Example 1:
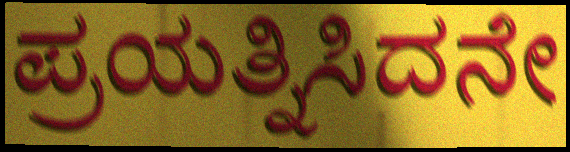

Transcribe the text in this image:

ಪ್ರಯತ್ನಿಸಿದನೇ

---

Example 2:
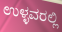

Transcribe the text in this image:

ಉಳ್ಳವರಲ್ಲಿ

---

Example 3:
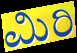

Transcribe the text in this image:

ಮಿರಿ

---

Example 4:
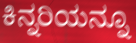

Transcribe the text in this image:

ಕಿನ್ನರಿಯನ್ನೂ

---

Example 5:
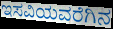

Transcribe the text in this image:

ಇಸವಿಯವರೆಗಿನ